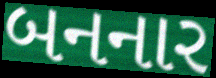
બનનાર